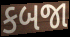
કબજા